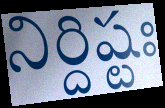
నిర్దిష్టః